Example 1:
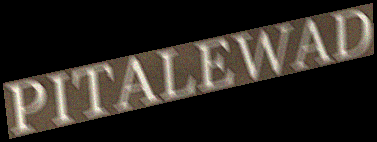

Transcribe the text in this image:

PITALEWAD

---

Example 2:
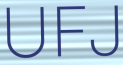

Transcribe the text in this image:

UFJ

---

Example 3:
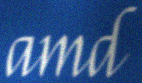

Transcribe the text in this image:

amd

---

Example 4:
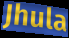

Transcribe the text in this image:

Jhula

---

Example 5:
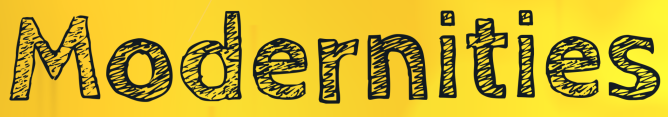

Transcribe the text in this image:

Modernities